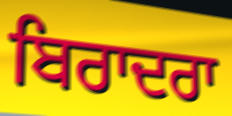
ਬਿਰਾਦਰਾ